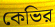
কেভির